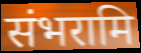
संभरामि